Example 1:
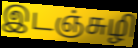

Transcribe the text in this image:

இடஞ்சுழி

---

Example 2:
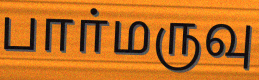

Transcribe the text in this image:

பார்மருவு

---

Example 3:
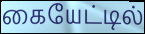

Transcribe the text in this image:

கையேட்டில்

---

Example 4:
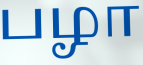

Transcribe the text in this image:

பழா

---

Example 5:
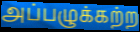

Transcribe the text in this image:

அப்பழுக்கற்ற